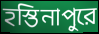
হস্তিনাপুরে